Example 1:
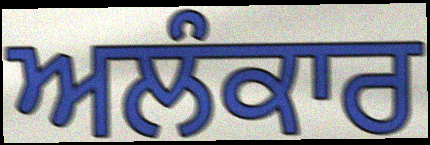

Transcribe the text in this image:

ਅਲੰਕਾਰ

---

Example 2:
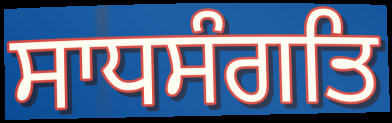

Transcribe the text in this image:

ਸਾਧਸੰਗਤਿ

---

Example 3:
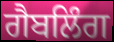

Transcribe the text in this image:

ਗੈਬਲਿੰਗ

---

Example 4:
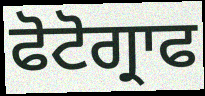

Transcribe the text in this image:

ਫੋਟੋਗ੍ਰਾਫ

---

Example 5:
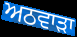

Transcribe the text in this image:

ਅਠਵਾੜਾ